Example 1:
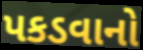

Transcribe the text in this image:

પકડવાનો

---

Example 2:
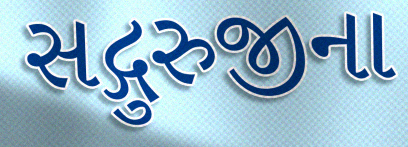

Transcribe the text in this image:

સદ્ગુરુજીના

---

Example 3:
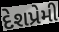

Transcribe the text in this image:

દેશપ્રેમી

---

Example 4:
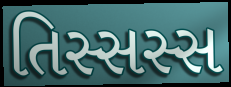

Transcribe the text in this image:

તિસ્સસ્સ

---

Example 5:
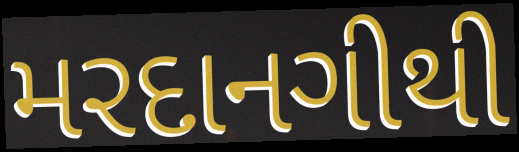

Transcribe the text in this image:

મરદાનગીથી